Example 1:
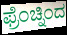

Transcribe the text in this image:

ಫ್ರೆಂಚ್ನಿಂದ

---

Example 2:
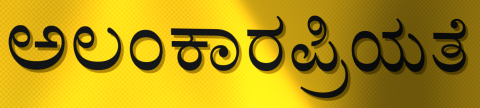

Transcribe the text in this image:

ಅಲಂಕಾರಪ್ರಿಯತೆ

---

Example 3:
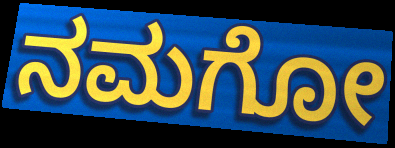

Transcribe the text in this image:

ನಮಗೋ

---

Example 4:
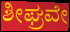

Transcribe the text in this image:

ಶೀಘ್ರವೇ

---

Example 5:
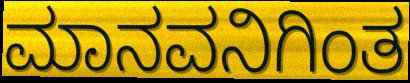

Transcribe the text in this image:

ಮಾನವನಿಗಿಂತ